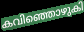
കവിഞ്ഞൊഴുകി